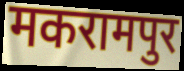
मकरामपुर